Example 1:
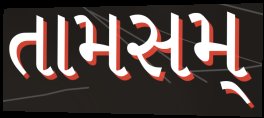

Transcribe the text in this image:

તામસમ્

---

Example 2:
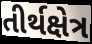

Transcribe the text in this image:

તીર્થક્ષેત્ર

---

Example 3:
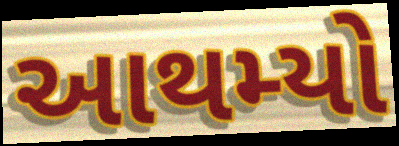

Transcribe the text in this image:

આથમ્યો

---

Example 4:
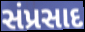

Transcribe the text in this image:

સંપ્રસાદ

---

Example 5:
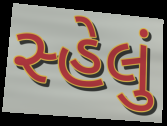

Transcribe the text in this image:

સ્હેલું